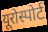
यूरोस्पोर्ट